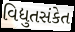
વિદ્યુતસંકેત